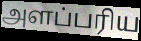
அளப்பரிய